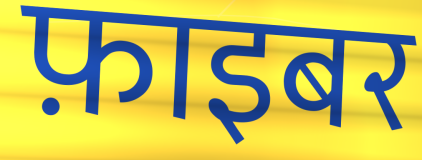
फ़ाइबर